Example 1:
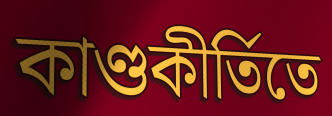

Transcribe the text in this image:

কাণ্ডকীর্তিতে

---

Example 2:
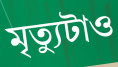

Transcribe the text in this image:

মৃত্যুটাও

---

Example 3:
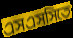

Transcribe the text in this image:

এসএসসিতে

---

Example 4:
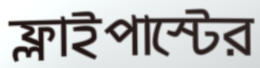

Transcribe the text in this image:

ফ্লাইপাস্টের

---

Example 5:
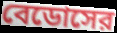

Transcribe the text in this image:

বেডোসের